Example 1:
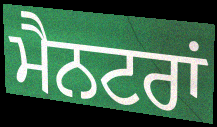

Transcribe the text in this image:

ਮੈਨਟਰਾਂ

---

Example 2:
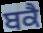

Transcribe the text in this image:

ਬਕੈ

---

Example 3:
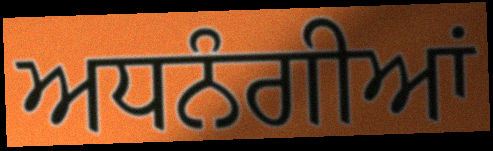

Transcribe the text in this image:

ਅਧਨੰਗੀਆਂ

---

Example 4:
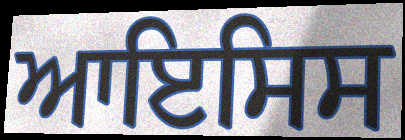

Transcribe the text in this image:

ਆਇਸਿਸ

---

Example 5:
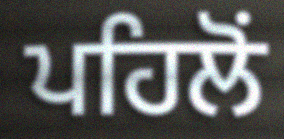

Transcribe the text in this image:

ਪਹਿਲੋਂ